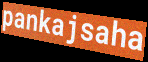
pankajsaha